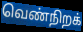
வெண்நிறக்